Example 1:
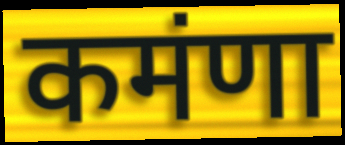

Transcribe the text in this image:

कमंणा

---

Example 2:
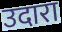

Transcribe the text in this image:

उदारा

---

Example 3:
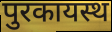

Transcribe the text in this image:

पुरकायस्थ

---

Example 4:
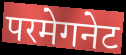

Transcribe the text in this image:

परमेगनेट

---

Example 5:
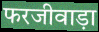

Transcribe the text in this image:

फरजीवाड़ा